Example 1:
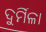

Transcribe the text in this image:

ଦୁର୍ମିଳା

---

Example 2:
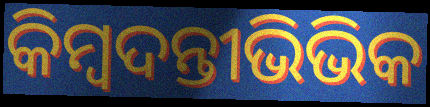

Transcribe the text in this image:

କିମ୍ବଦନ୍ତୀଭିଭିକ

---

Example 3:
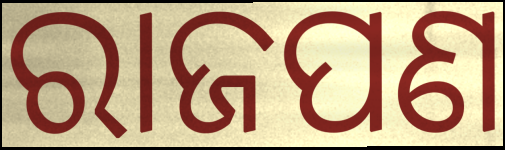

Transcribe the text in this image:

ରାଜପଣ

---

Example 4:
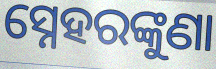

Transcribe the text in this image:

ସ୍ନେହରଙ୍କୁଣା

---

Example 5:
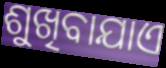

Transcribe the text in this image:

ଶୁଖିବାଯାଏ